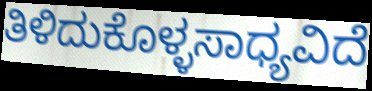
ತಿಳಿದುಕೊಳ್ಳಸಾಧ್ಯವಿದೆ